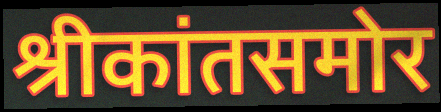
श्रीकांतसमोर